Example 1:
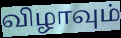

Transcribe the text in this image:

விழாவும்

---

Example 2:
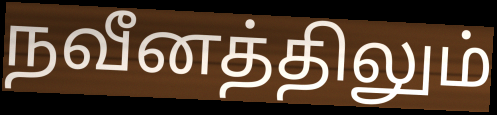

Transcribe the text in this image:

நவீனத்திலும்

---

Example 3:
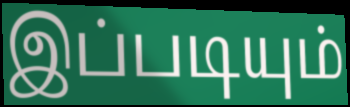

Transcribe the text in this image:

இப்படியும்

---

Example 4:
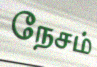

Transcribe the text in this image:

நேசம்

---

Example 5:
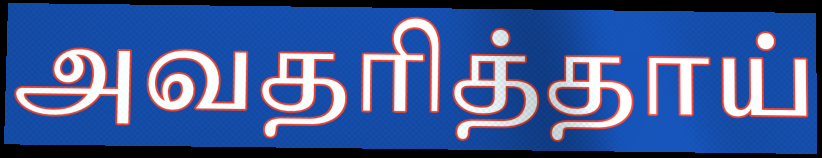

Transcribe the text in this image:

அவதரித்தாய்